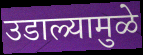
उडाल्यामुळे